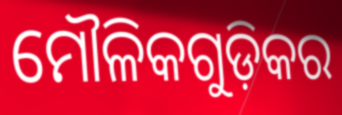
ମୌଳିକଗୁଡ଼ିକର